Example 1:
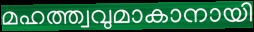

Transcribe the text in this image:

മഹത്ത്വവുമാകാനായി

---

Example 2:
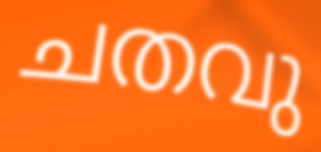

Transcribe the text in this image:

ചതവു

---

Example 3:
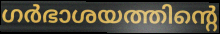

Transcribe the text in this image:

ഗർഭാശയത്തിന്റെ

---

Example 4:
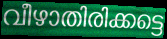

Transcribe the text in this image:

വീഴാതിരിക്കട്ടെ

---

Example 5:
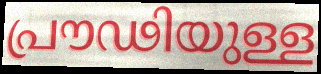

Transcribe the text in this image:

പ്രൗഢിയുള്ള